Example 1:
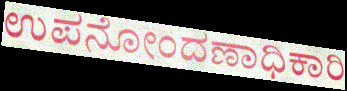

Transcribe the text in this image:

ಉಪನೋಂದಣಾಧಿಕಾರಿ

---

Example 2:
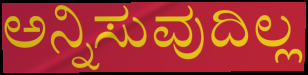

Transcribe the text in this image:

ಅನ್ನಿಸುವುದಿಲ್ಲ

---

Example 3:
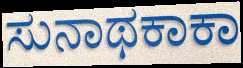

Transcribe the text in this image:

ಸುನಾಥಕಾಕಾ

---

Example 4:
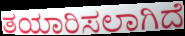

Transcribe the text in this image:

ತಯಾರಿಸಲಾಗಿದೆ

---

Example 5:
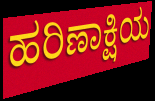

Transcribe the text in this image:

ಹರಿಣಾಕ್ಷಿಯ